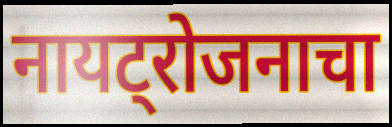
नायट्रोजनाचा